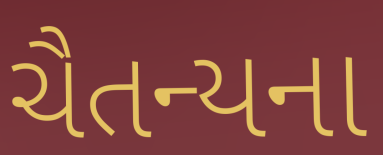
ચૈતન્યના